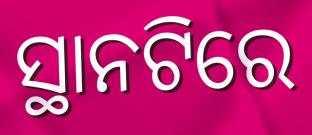
ସ୍ଥାନଟିରେ